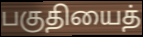
பகுதியைத்